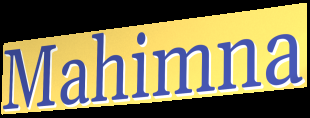
Mahimna